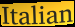
Italian